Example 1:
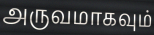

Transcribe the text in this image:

அருவமாகவும்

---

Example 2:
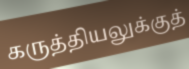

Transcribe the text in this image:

கருத்தியலுக்குத்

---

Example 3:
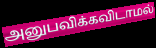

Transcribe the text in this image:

அனுபவிக்கவிடாமல்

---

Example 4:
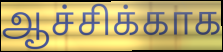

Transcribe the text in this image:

ஆச்சிக்காக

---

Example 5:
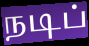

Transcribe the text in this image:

நடிப்